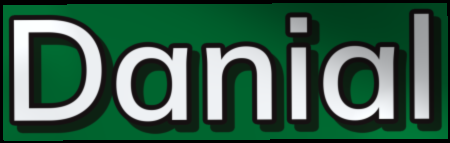
Danial